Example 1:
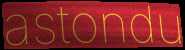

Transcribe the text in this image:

astondu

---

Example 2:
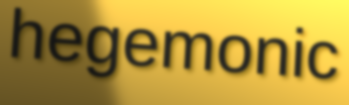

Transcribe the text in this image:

hegemonic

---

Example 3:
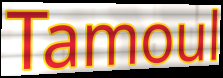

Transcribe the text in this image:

Tamoul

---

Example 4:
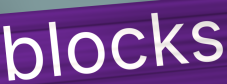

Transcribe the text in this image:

blocks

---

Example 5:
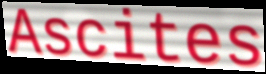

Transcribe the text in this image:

Ascites